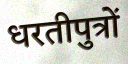
धरतीपुत्रों